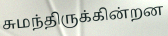
சுமந்திருக்கின்றன